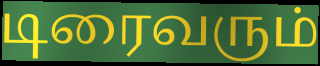
டிரைவரும்